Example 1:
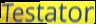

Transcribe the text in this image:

Testator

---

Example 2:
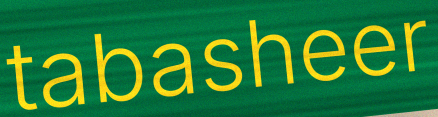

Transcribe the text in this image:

tabasheer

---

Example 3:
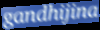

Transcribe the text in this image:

gandhijina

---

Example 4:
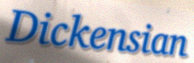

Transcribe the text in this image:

Dickensian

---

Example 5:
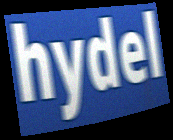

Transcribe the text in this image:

hydel